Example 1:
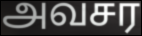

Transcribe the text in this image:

அவசர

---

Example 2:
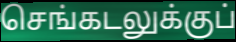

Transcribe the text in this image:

செங்கடலுக்குப்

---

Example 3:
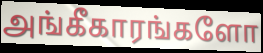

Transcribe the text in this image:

அங்கீகாரங்களோ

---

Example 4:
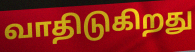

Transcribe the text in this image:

வாதிடுகிறது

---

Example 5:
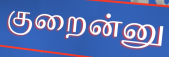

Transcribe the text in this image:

குறைன்னு